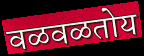
वळवळतोय